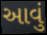
આવું